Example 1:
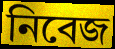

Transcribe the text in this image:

নিবেজ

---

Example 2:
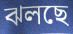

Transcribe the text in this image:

ঝলছে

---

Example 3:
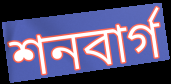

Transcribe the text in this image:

শনবার্গ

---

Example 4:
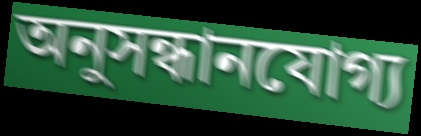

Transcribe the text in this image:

অনুসন্ধানযোগ্য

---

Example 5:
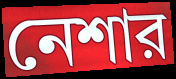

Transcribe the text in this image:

নেশার